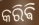
କରିଵି